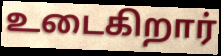
உடைகிறார்